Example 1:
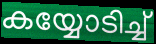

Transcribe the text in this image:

കയ്യോടിച്ച്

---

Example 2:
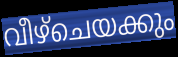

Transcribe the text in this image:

വീഴ്ചെയക്കും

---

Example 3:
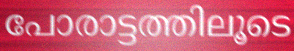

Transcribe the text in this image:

പോരാട്ടത്തിലൂടെ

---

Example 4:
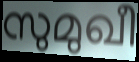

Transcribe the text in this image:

സുമുഖീ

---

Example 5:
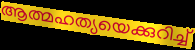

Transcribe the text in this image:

ആത്മഹത്യയെക്കുറിച്ച്